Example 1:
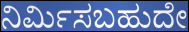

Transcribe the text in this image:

ನಿರ್ಮಿಸಬಹುದೇ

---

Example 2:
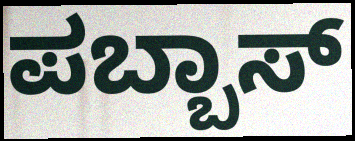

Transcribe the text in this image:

ಪಬ್ಬಾಸ್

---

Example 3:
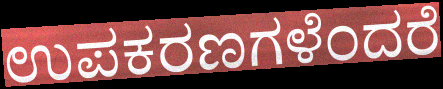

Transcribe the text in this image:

ಉಪಕರಣಗಳೆಂದರೆ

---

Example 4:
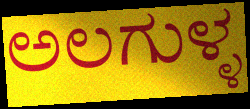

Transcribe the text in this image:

ಅಲಗುಳ್ಳ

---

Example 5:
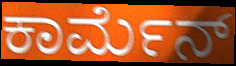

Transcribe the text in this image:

ಕಾರ್ಮೆನ್